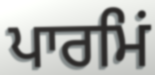
ਪਾਰਮਿਂ